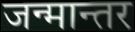
जन्मान्तर